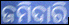
ଜମିଦାରି